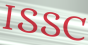
ISSC